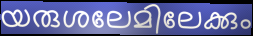
യരുശലേമിലേക്കും